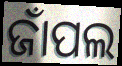
ଜାଁପଲ